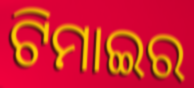
ଟିମାଇର